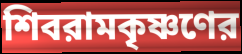
শিবরামকৃষ্ণণের